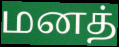
மனத்